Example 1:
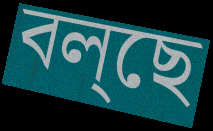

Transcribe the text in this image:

বল্ছে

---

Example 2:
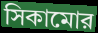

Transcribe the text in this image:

সিকামোর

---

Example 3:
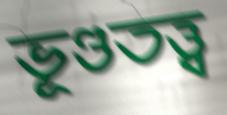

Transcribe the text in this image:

ভূণ্ডতত্ত্ব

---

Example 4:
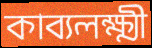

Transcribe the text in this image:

কাব্যলক্ষ্মী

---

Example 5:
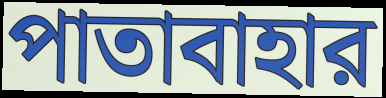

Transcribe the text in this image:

পাতাবাহার